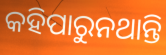
କହିପାରୁନଥାନ୍ତି